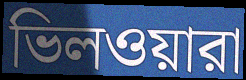
ভিলওয়ারা